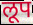
लूप